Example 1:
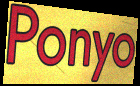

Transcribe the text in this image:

Ponyo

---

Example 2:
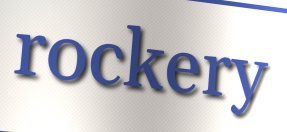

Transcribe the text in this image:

rockery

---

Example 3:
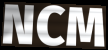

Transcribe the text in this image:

NCM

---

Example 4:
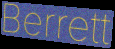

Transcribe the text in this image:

Berrett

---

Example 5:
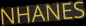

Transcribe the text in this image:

NHANES